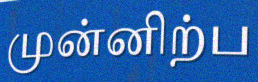
முன்னிற்ப